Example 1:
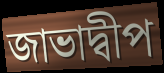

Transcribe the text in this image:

জাভাদ্বীপ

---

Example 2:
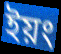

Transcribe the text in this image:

ইয়ং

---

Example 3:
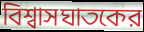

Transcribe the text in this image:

বিশ্বাসঘাতকের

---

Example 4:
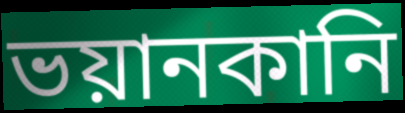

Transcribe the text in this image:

ভয়ানকানি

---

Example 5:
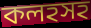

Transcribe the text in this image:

কলহসহ